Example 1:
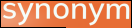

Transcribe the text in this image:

synonym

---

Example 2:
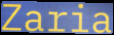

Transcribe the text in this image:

Zaria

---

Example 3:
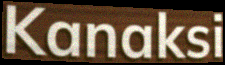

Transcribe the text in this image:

Kanaksi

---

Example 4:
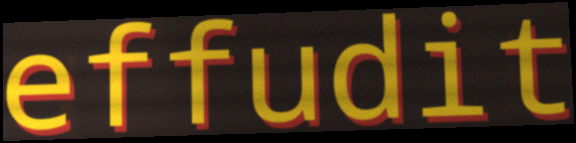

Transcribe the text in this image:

effudit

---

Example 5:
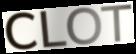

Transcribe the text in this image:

CLOT